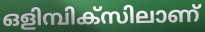
ഒളിമ്പിക്സിലാണ്